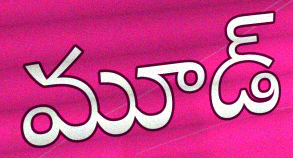
మూడ్